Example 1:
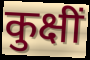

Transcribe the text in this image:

कुक्षीं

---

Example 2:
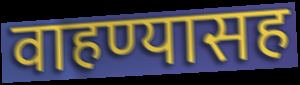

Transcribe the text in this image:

वाहण्यासह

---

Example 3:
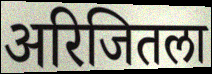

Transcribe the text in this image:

अरिजितला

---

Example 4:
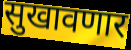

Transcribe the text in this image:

सुखावणार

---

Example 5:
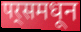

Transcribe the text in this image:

पर्समधून